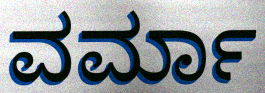
ವರ್ಮಾ